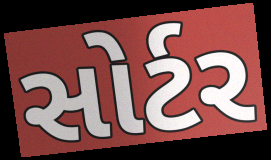
સોર્ટર